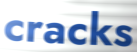
cracks